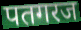
पतगरज